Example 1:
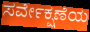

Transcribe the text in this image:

ಸರ್ವೇಕ್ಷಣೆಯ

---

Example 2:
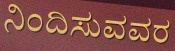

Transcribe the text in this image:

ನಿಂದಿಸುವವರ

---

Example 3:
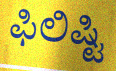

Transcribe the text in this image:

ಫಿಲಿಷ್ಟಿ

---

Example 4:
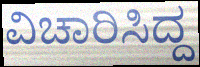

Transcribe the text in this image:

ವಿಚಾರಿಸಿದ್ದ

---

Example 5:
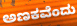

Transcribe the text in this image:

ಅಣಕವೆಂದು